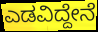
ಎಡವಿದ್ದೇನೆ